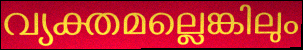
വ്യക്തമല്ലെങ്കിലും